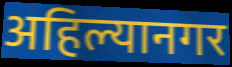
अहिल्यानगर